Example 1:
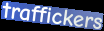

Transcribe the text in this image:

traffickers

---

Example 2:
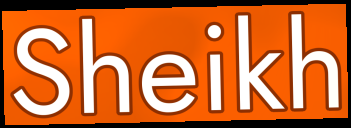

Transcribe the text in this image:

Sheikh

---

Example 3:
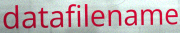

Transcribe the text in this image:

datafilename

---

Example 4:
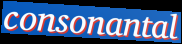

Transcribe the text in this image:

consonantal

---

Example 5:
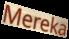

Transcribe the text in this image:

Mereka